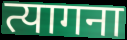
त्यागना